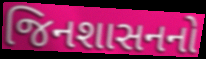
જિનશાસનનો